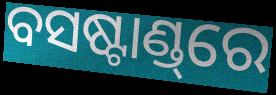
ବସଷ୍ଟାଣ୍ଡ୍‌ରେ